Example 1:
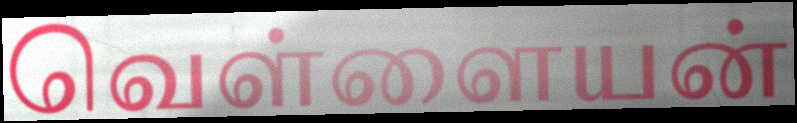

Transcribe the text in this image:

வெள்ளையன்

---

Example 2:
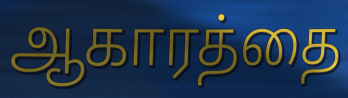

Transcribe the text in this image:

ஆகாரத்தை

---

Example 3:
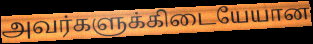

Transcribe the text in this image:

அவர்களுக்கிடையேயான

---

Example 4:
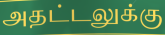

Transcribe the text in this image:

அதட்டலுக்கு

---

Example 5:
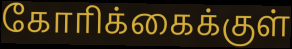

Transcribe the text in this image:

கோரிக்கைக்குள்